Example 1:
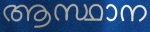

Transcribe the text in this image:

ആസ്ഥാന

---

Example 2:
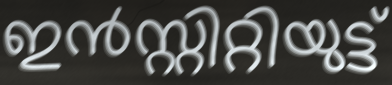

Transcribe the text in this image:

ഇൻസ്റ്റിറ്റിയുട്ട്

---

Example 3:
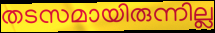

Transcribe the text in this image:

തടസമായിരുന്നില്ല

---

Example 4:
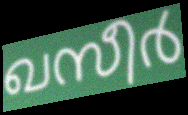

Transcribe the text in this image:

ഖസീർ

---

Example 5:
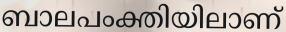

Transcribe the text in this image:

ബാലപംക്തിയിലാണ്